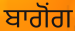
ਬਾਗੋਂਗ